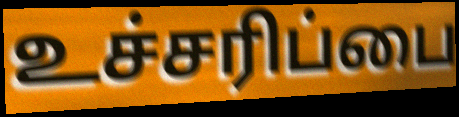
உச்சரிப்பை